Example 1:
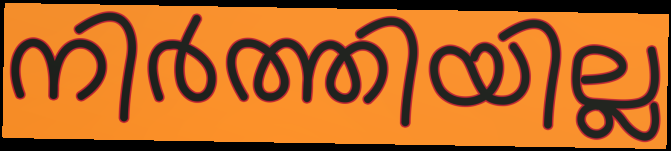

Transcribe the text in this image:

നിർത്തിയില്ല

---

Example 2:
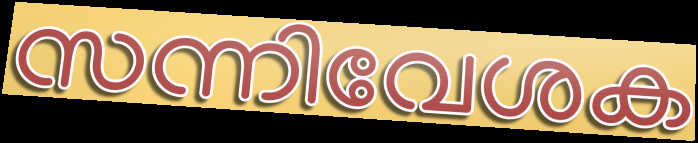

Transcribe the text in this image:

സന്നിവേശക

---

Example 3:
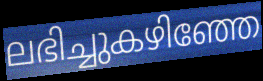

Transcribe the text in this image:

ലഭിച്ചുകഴിഞ്ഞേ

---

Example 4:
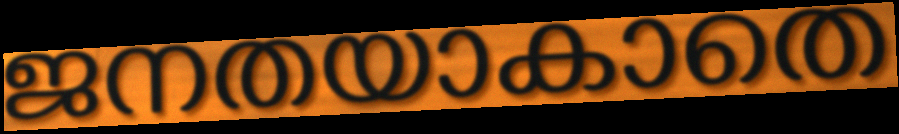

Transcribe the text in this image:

ജനതയാകാതെ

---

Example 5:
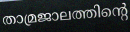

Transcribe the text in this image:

താമ്രജാലത്തിന്റെ